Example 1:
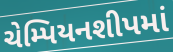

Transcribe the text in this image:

ચેમ્પિયનશીપમાં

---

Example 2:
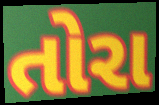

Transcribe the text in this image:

તોરા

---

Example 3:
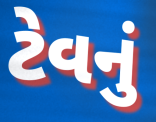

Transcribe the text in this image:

ટેવનું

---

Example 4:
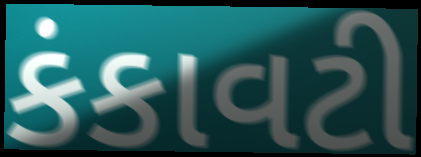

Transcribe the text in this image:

કંકાવટી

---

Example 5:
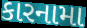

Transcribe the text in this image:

કારનામા